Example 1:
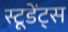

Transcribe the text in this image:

स्टूडेंट्स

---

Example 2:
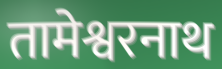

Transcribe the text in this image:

तामेश्वरनाथ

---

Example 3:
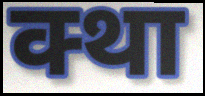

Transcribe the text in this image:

क्था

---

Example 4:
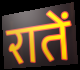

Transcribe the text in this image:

रातें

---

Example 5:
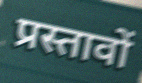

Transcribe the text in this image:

प्रस्तावों